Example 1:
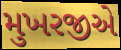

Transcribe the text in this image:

મુખરજીએ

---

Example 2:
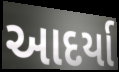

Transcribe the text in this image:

આદર્યા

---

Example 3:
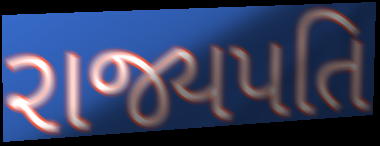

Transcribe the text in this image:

રાજ્યપતિ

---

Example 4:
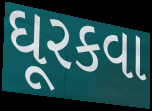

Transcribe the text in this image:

ઘૂરકવા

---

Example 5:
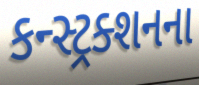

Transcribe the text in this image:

કન્સ્ટ્રક્શનના